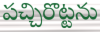
పచ్చిరొట్టను